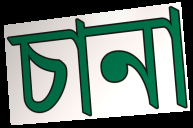
চানা